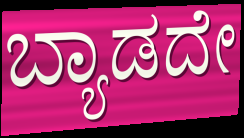
ಬ್ಯಾಡದೇ